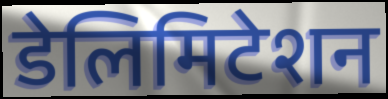
डेलिमिटेशन